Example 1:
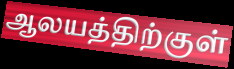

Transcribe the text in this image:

ஆலயத்திற்குள்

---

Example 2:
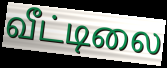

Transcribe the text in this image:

வீட்டிலை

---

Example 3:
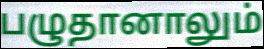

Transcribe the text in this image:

பழுதானாலும்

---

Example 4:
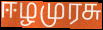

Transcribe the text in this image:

ஈழமுரசு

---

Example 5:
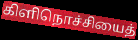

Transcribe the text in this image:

கிளிநொச்சியைத்